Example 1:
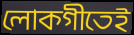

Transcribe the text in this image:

লোকগীতেই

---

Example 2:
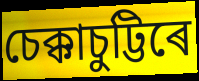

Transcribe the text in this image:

চেক্কাচুট্টিৰে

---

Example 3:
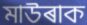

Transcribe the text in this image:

মাউৰাক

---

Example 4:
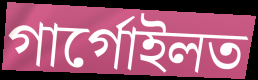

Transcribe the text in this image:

গাৰ্গোইলত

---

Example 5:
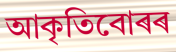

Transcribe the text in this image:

আকৃতিবোৰৰ